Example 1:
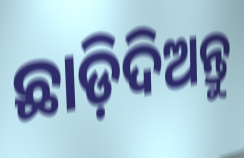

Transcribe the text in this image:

ଛାଡ଼ିଦିଅନ୍ତୁ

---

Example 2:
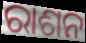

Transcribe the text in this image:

ରାଶନ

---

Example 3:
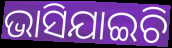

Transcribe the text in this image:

ଭାସିଯାଇଚି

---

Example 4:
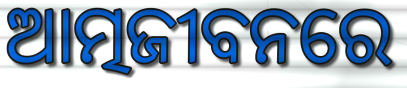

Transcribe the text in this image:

ଆତ୍ମଜୀବନରେ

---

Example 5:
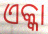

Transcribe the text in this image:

ଏକ୍କା